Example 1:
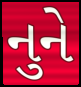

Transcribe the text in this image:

નુને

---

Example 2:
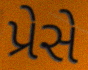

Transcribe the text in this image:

પ્રેસે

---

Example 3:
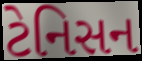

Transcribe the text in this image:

ટેનિસન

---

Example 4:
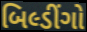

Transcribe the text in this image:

બિલ્ડીંગો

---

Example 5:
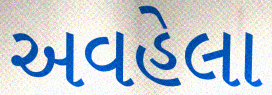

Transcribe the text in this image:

અવહેલા